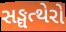
સઙ્ઘત્થેરો